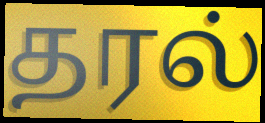
தரல்